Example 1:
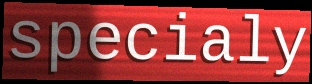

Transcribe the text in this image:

specialy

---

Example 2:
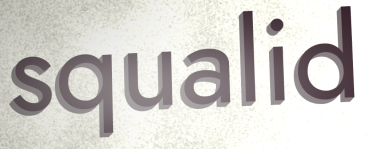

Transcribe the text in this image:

squalid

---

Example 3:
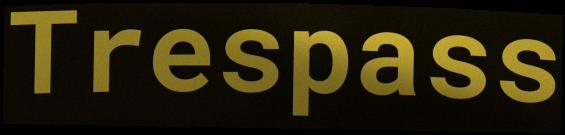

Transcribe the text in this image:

Trespass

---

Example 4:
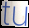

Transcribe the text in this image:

tu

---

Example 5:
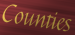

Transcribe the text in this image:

Counties